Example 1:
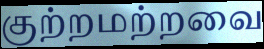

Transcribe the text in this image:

குற்றமற்றவை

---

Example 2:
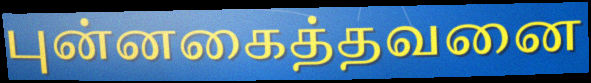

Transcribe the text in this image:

புன்னகைத்தவனை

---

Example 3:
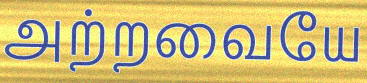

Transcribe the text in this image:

அற்றவையே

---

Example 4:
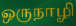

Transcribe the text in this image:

ஒருநாழி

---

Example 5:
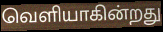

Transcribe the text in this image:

வெளியாகின்றது